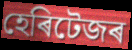
হেৰিটেজৰ